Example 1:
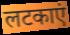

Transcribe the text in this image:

लटकाएं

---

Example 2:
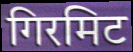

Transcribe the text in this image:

गिरमिट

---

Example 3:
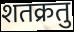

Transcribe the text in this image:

शतक्रतु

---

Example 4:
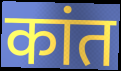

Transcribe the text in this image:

कांत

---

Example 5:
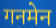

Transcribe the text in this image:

गनमेन